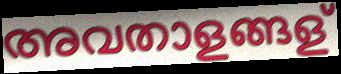
അവതാളങ്ങള്